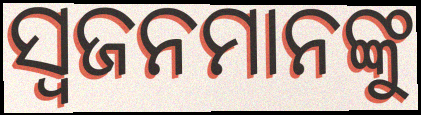
ସ୍ବଜନମାନଙ୍କୁ